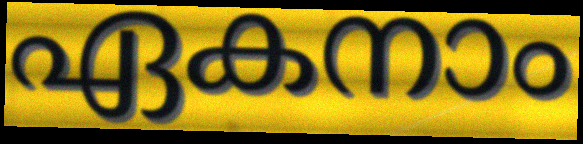
ഏകനാം